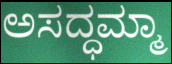
ಅಸದ್ಧಮ್ಮಾ